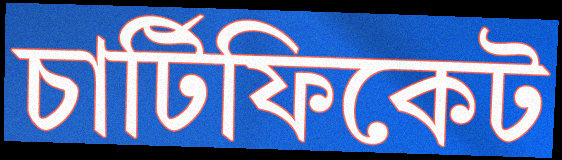
চাৰ্টিফিকেট